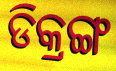
ଡିକ୍ରଙ୍ଗ